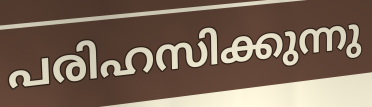
പരിഹസിക്കുന്നു